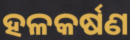
ହଳକର୍ଷଣ